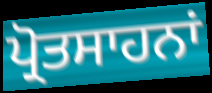
ਪ੍ਰੋਤਸਾਹਨਾਂ